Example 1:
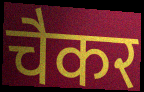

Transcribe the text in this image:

चैकर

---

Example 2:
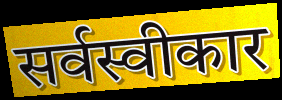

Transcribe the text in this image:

सर्वस्वीकार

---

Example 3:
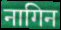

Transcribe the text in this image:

नागिन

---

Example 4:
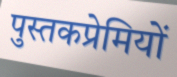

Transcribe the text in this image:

पुस्तकप्रेमियों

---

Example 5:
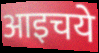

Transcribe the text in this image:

आइचये